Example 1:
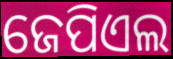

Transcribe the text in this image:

ଜେପିଏଲ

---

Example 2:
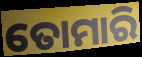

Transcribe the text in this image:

ତୋମାରି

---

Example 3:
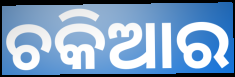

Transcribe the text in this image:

ଚକିଆର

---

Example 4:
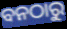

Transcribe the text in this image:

ବନଠାରୁ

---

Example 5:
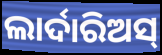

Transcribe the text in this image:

ଲାର୍ଦାରିଅସ୍